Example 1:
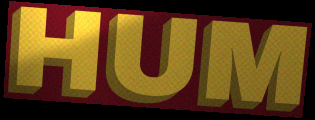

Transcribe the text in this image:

HUM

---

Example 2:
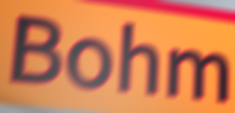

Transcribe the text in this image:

Bohm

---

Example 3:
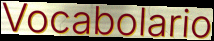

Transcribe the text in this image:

Vocabolario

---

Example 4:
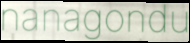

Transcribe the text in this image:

nanagondu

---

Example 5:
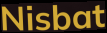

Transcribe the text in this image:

Nisbat